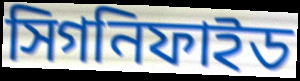
সিগনিফাইড